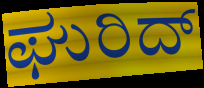
ಘುರಿದ್